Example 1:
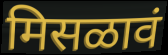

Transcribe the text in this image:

मिसळावं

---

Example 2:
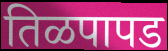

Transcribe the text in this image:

तिळपापड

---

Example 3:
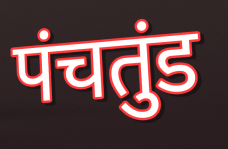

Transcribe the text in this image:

पंचतुंड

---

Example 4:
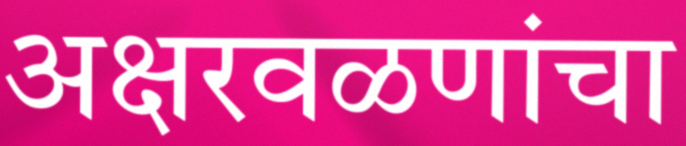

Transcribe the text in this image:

अक्षरवळणांचा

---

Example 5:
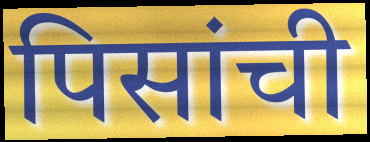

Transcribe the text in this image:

पिसांची